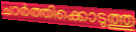
ചാർത്തിക്കൊടുത്തു